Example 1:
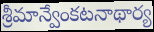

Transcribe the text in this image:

శ్రీమాన్వేంకటనాథార్య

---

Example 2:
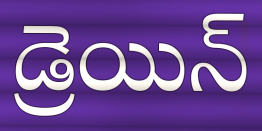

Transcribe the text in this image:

డ్రెయిన్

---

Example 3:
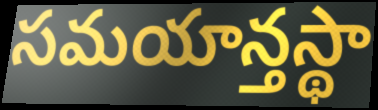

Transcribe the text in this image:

సమయాన్తస్థా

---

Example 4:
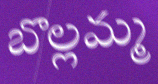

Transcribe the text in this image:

బొల్లమ్మ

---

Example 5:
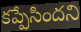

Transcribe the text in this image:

కప్పేసిందని